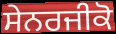
ਸੇਨਰਜੀਕੋ